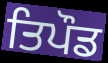
ਤਿਪੌਡ